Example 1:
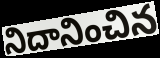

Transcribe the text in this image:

నిదానించిన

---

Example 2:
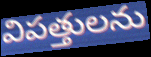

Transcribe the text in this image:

విపత్తులను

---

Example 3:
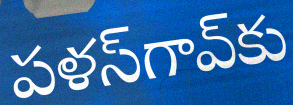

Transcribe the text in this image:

పళస్‌గావ్‌కు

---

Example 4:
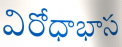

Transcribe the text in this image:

విరోధాభాస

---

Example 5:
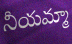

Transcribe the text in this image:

నీయమ్మా